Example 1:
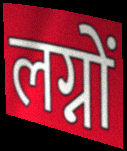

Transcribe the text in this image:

लग्नों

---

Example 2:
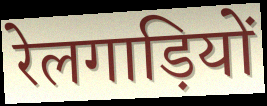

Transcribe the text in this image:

रेलगाड़ियों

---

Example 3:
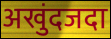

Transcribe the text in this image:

अखुंदजदा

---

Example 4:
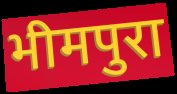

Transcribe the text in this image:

भीमपुरा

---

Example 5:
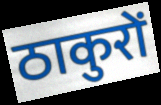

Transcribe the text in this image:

ठाकुरों